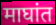
माघांत